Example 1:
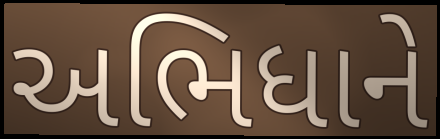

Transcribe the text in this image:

અભિધાને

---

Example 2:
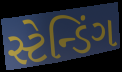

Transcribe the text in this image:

સ્ટેન્ડિંગ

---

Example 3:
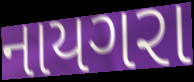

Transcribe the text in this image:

નાયગરા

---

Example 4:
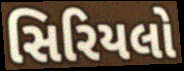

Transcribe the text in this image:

સિરિયલો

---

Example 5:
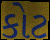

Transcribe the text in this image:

કોટ